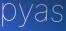
pyas